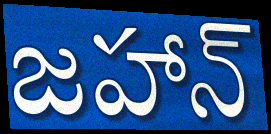
జహాన్